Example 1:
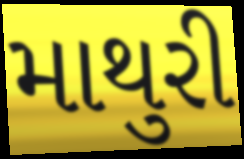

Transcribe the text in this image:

માથુરી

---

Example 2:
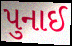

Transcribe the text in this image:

પુનાઈ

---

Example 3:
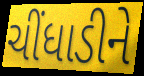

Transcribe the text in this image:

ચીંધાડીને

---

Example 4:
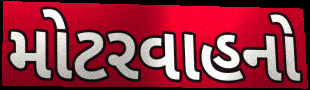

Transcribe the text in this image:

મોટરવાહનો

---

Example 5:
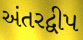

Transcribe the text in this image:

અંતરદ્વીપ